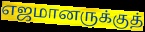
எஜமானருக்குத்